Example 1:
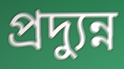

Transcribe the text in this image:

প্রদ্যুন্ন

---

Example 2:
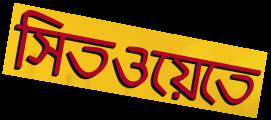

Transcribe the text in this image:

সিতওয়েতে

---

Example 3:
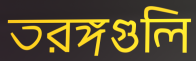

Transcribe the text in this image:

তরঙ্গগুলি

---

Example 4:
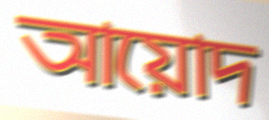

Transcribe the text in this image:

আয়োদ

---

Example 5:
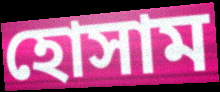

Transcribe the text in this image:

হোসাম